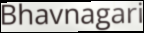
Bhavnagari